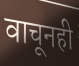
वाचूनही